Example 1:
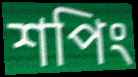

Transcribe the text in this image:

শপিং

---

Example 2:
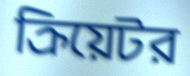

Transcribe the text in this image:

ক্রিয়েটর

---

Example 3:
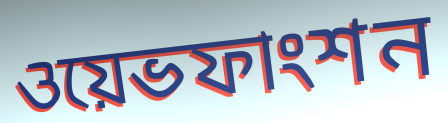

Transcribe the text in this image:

ওয়েভফাংশন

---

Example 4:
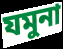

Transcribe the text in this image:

যমুনা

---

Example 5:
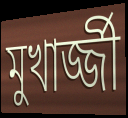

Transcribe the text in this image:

মুখার্জ্জী